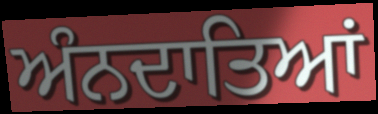
ਅੰਨਦਾਤਿਆਂ